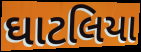
ઘાટલિયા